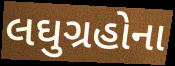
લઘુગ્રહોના